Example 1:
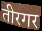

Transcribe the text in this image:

तीरगर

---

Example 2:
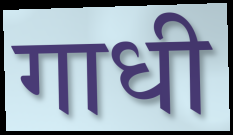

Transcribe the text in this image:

गाधी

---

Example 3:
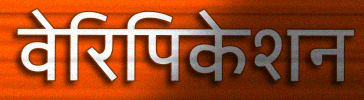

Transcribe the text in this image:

वेरिपिकेशन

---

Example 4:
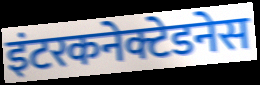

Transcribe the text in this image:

इंटरकनेक्टेडनेस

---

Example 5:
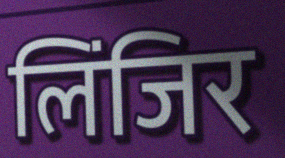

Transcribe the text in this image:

लिंजिर